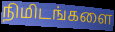
நிமிடங்களை